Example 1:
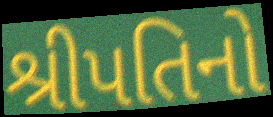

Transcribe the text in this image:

શ્રીપતિનો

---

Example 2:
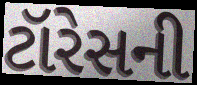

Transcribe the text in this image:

ટૉરેસની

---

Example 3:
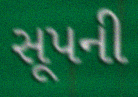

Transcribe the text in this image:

સૂપની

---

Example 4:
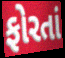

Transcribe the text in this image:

ફોરતાં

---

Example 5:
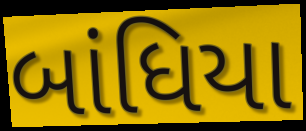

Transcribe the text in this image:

બાંધિયા